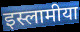
इस्लामीया